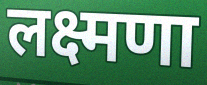
लक्ष्मणा